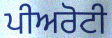
ਪੀਅਰੋਟੀ